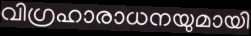
വിഗ്രഹാരാധനയുമായി